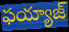
ఫయ్యాజ్